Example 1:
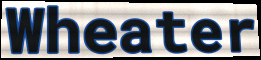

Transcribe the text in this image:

Wheater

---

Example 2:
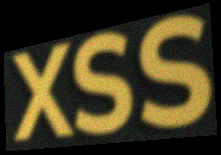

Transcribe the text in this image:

XSS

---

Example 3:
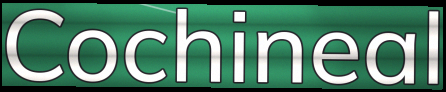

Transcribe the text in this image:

Cochineal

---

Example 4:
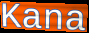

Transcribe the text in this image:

Kana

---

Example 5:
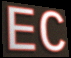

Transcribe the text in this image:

EC